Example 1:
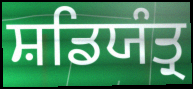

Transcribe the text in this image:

ਸ਼ਡਿਯੰਤ੍ਰ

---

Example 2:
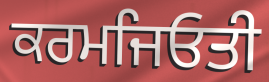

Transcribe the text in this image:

ਕਰਮਜਿਓਤੀ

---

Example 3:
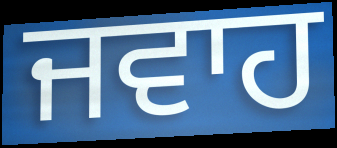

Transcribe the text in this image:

ਜਵਾਹ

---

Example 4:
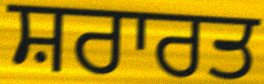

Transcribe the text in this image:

ਸ਼ਰਾਰਤ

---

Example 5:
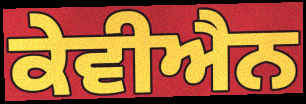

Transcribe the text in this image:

ਕੇਵੀਐਨ